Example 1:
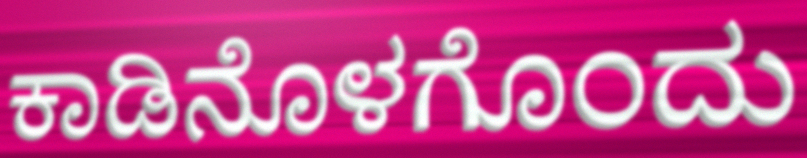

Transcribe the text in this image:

ಕಾಡಿನೊಳಗೊಂದು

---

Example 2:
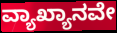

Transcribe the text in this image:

ವ್ಯಾಖ್ಯಾನವೇ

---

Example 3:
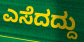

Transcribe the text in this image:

ಎಸೆದದ್ದು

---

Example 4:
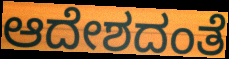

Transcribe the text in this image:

ಆದೇಶದಂತೆ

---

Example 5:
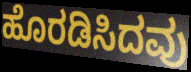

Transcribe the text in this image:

ಹೊರಡಿಸಿದವು